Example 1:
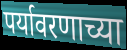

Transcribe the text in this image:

पर्यावरणाच्या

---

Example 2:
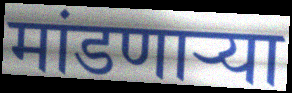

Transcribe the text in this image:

मांडणार्‍या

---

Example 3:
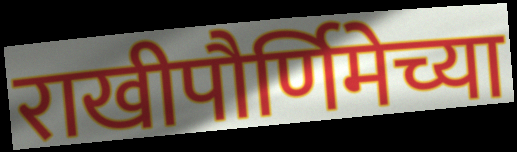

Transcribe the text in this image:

राखीपौर्णिमेच्या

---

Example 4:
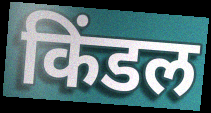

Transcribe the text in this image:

किंडल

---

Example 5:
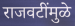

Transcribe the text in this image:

राजवटींमुळे